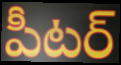
పీటర్